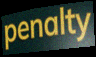
penalty